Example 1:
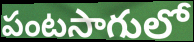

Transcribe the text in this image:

పంటసాగులో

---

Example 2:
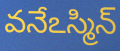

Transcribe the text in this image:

వనేఽస్మిన్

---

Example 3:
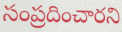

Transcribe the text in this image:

సంప్రదించారని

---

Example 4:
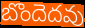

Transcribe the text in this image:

బొందెదవు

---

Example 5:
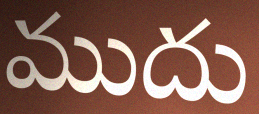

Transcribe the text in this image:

ముదు